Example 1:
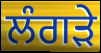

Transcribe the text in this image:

ਲੰਗੜੇ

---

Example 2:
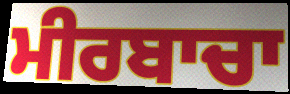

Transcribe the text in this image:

ਮੀਰਬਾਚਾ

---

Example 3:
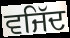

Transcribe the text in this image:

ਵਜਿੱਦ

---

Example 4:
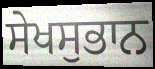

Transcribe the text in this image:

ਸੇਖਸੁਭਾਨ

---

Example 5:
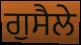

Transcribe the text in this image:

ਗੁਸੈਲੇ